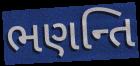
ભણન્તિ